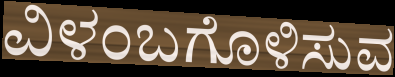
ವಿಳಂಬಗೊಳಿಸುವ